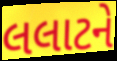
લલાટને